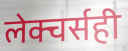
लेक्चर्सही